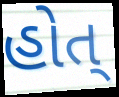
હોત્